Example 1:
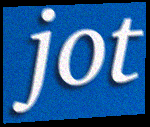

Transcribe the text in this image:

jot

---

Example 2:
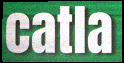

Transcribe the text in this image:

catla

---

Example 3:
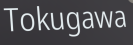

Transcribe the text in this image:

Tokugawa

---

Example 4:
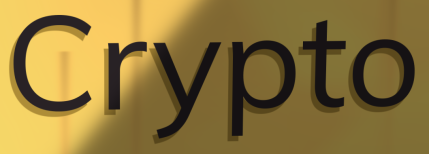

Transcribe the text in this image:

Crypto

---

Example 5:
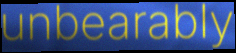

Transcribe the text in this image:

unbearably